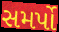
સમર્પો